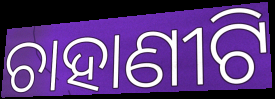
ଚାହାଣୀଟି